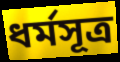
ধর্মসূত্র